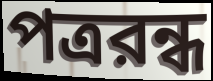
পত্ররন্ধ